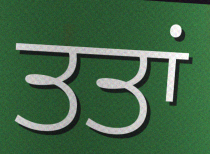
ਤਤਾਂ